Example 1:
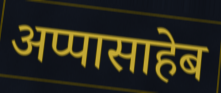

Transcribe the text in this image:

अप्पासाहेब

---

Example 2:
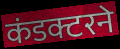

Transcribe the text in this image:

कंडक्टरने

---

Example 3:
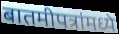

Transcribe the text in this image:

बातमीपत्रांमध्ये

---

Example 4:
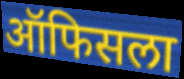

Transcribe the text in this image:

ऑफिसला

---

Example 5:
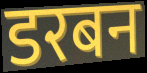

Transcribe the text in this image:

डरबन